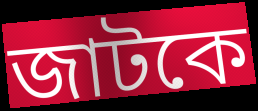
জাটকে